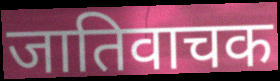
जातिवाचक